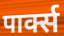
पार्क्स